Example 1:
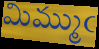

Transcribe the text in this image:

మిమ్ముఁ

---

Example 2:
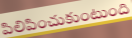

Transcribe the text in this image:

పిలిపించుకుంటుంది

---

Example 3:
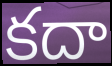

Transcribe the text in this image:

కదా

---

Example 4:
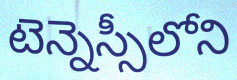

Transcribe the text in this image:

టెన్నెస్సీలోని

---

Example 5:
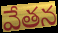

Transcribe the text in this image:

వేతన